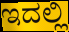
ಇದಲ್ಲಿ